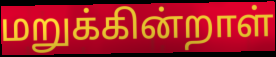
மறுக்கின்றாள்